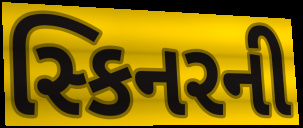
સ્કિનરની